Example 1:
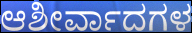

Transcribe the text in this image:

ಆಶೀರ್ವಾದಗಳ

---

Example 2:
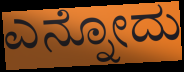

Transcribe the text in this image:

ಎನ್ನೋದು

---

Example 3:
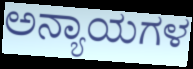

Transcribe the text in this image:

ಅನ್ಯಾಯಗಳ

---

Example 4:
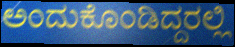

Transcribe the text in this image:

ಅಂದುಕೊಂಡಿದ್ದರಲ್ಲಿ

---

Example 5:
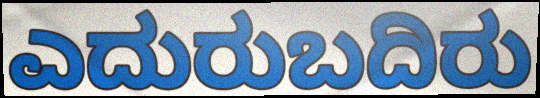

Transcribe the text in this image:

ಎದುರುಬದಿರು